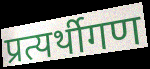
प्रत्यर्थीगण